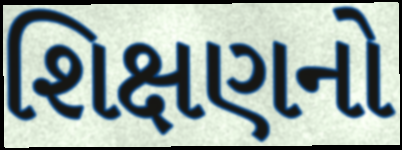
શિક્ષણનો